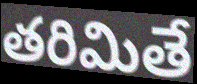
తరిమితే